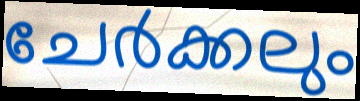
ചേർക്കലും